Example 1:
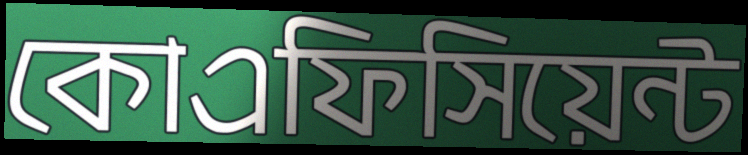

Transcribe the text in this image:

কোএফিসিয়েন্ট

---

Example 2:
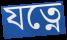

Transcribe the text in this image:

যত্নে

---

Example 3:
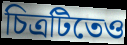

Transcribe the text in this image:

চিত্রটিতেও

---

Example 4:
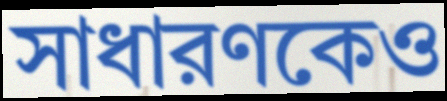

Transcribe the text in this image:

সাধারণকেও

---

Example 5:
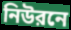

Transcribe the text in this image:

নিউরনে